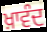
ਖ਼ਾਵੰਦ